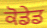
ਕੋਡੇਡ